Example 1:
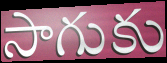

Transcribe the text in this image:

సాగుకు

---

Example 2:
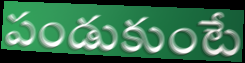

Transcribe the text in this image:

పండుకుంటే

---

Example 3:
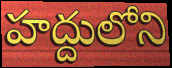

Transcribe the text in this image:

హద్దులోని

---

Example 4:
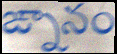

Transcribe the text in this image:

ఙ్నానం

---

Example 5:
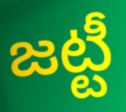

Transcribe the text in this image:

జట్టీ